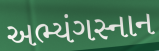
અભ્યંગસ્નાન